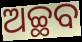
ଅଚ୍ଛବ